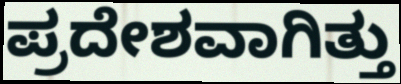
ಪ್ರದೇಶವಾಗಿತ್ತು